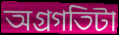
অগ্রগতিটা